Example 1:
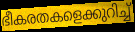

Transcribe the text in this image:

ഭീകരതകളെക്കുറിച്ച്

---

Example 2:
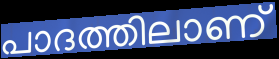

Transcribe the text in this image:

പാദത്തിലാണ്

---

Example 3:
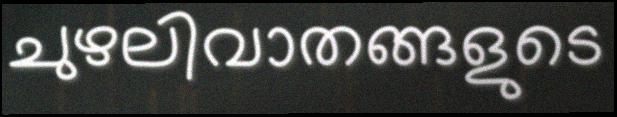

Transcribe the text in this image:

ചുഴലിവാതങ്ങളുടെ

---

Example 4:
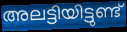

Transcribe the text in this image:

അലട്ടിയിട്ടുണ്ട്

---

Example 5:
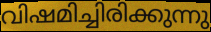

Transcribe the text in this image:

വിഷമിച്ചിരിക്കുന്നു